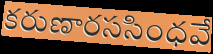
కరుణారససింధవే